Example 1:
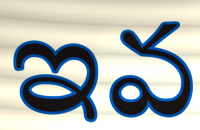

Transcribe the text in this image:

ఇవ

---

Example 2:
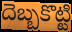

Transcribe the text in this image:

దెబ్బకొట్టి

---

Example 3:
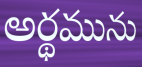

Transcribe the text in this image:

అర్థమును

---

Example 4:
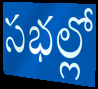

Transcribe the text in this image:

సభల్లో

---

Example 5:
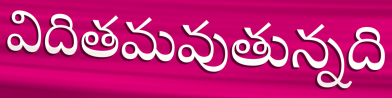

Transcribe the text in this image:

విదితమవుతున్నది